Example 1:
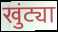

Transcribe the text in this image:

खुंट्या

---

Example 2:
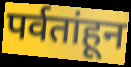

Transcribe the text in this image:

पर्वतांहून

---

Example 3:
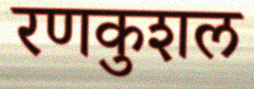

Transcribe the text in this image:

रणकुशल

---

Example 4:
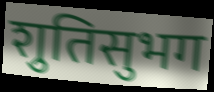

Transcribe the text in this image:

श्रुतिसुभग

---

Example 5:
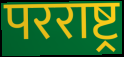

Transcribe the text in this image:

परराष्ट्र